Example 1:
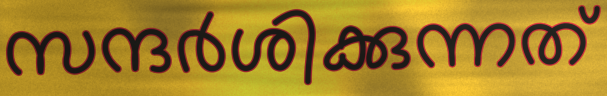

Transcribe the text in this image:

സന്ദർശിക്കുന്നത്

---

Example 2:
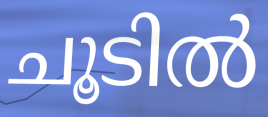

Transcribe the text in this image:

ചൂടിൽ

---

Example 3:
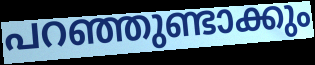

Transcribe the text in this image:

പറഞ്ഞുണ്ടാക്കും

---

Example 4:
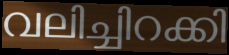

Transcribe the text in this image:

വലിച്ചിറക്കി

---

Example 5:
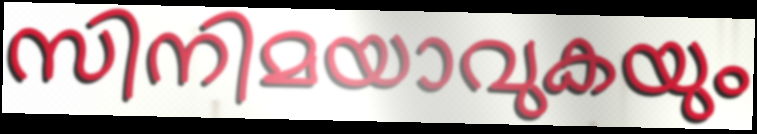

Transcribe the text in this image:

സിനിമയാവുകയും